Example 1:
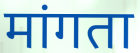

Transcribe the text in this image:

मांगता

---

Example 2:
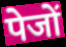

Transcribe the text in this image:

पेजों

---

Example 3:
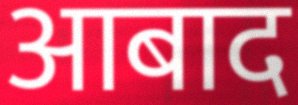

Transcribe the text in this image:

आबाद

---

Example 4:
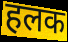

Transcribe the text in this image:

हलक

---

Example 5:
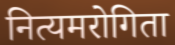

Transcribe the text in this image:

नित्यमरोगिता